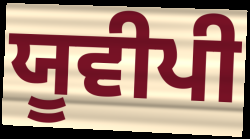
ਯੂਵੀਪੀ